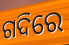
ଗଦିରେ